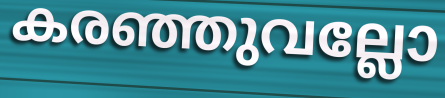
കരഞ്ഞുവല്ലോ